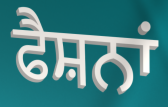
ਫੈਸ਼ਨਾਂ